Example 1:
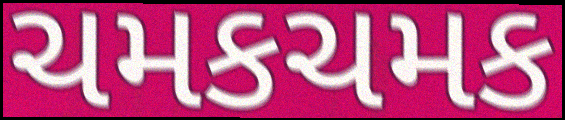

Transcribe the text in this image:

ચમકચમક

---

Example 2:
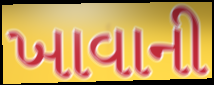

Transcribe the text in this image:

ખાવાની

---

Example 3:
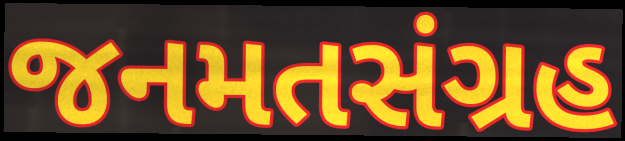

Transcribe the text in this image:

જનમતસંગ્રહ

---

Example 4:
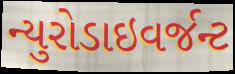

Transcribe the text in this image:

ન્યુરોડાઇવર્જન્ટ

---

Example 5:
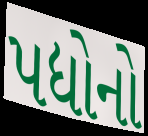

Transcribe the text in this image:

પદ્યોનો